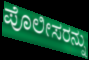
ಪೊಲೀಸರನ್ನು